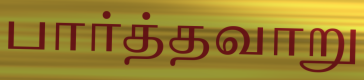
பார்த்தவாறு